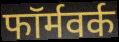
फॉर्मवर्क